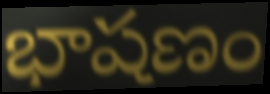
భాషణం